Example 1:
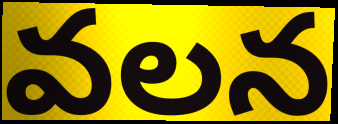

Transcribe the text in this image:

వలన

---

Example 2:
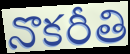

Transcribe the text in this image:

నొకరీతి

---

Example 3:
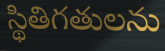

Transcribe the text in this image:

స్థితిగతులను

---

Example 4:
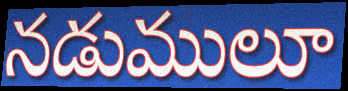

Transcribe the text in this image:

నడుములూ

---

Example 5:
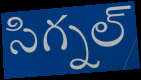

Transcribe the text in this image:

సిగ్నల్